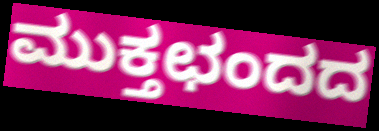
ಮುಕ್ತಛಂದದ